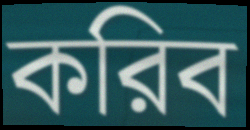
করিব